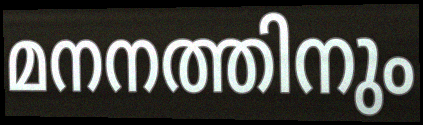
മനനത്തിനും